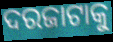
ଦରଜାଟାକୁ